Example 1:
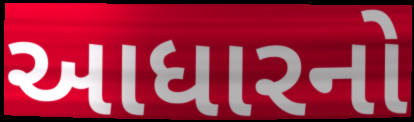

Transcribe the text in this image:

આધારનો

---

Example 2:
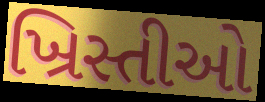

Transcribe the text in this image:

ખ્રિસ્તીઓ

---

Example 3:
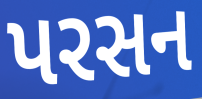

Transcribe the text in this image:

પરસન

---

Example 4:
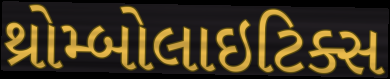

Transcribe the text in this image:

થ્રોમ્બોલાઇટિક્સ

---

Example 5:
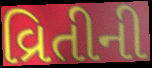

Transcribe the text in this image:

વ્રિતીની